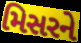
મિસરને